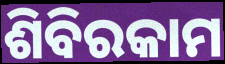
ଶିବିରକାମ